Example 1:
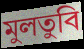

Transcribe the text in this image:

মুলতুবি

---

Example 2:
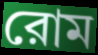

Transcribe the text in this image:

রোম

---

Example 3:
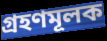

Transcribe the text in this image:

গ্রহণমূলক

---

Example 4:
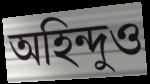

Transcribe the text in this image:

অহিন্দুও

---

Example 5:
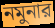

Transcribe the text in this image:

নমুনার